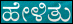
ಹೇಳಿತು